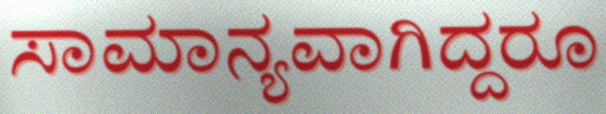
ಸಾಮಾನ್ಯವಾಗಿದ್ದರೂ